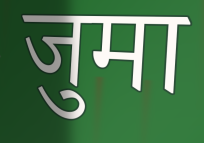
जुमा